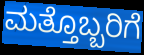
ಮತ್ತೊಬ್ಬರಿಗೆ